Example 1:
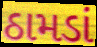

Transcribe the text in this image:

ઠામડાં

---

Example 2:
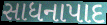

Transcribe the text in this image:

સાધનાપાદ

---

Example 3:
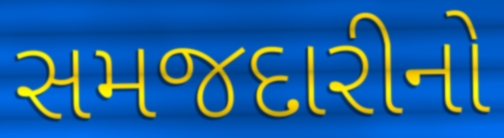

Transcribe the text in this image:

સમજદારીનો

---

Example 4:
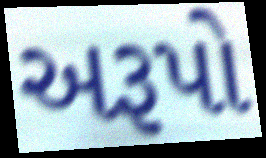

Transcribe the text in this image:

અરૂપો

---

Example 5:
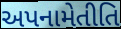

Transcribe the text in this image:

અપનામેતીતિ